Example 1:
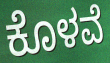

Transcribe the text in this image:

ಕೊಳವೆ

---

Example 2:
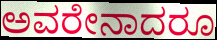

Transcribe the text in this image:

ಅವರೇನಾದರೂ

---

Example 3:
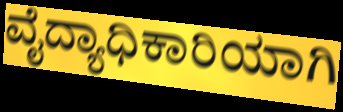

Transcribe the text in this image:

ವೈದ್ಯಾಧಿಕಾರಿಯಾಗಿ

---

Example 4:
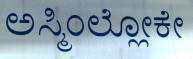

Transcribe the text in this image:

ಅಸ್ಮಿಂಲ್ಲೋಕೇ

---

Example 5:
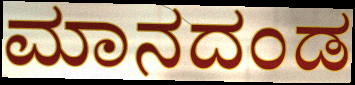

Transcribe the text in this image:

ಮಾನದಂಡ